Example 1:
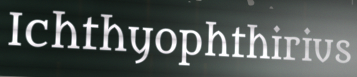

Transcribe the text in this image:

Ichthyophthirius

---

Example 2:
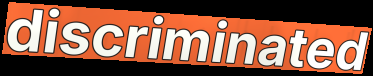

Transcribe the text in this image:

discriminated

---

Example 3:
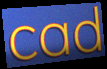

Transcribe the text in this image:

cad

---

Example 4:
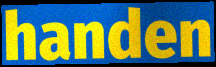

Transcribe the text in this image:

handen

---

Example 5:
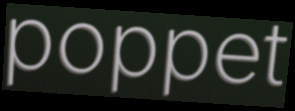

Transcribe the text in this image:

poppet